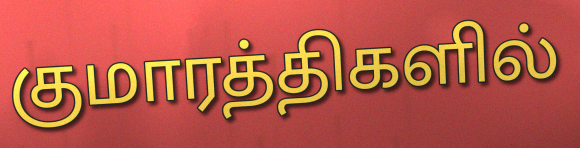
குமாரத்திகளில்